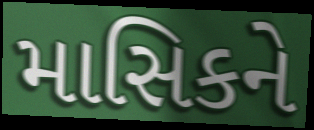
માસિકને